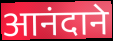
आनंदाने